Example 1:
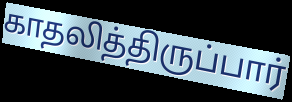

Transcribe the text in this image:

காதலித்திருப்பார்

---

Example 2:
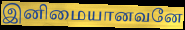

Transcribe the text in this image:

இனிமையானவனே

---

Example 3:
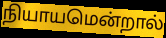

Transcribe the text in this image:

நியாயமென்றால்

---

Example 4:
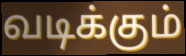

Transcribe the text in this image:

வடிக்கும்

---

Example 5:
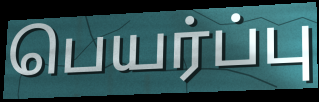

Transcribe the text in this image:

பெயர்ப்பு